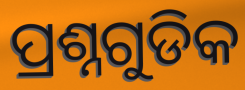
ପ୍ରଶ୍ନଗୁଡିକ